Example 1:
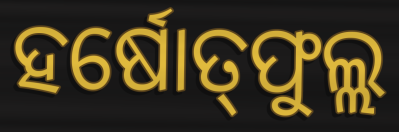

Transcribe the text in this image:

ହର୍ଷୋତ୍‌ଫୁଲ୍ଲ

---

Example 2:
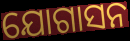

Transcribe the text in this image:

ଯୋଗାସନ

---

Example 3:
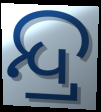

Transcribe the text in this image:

ନ୍ଦ୍ର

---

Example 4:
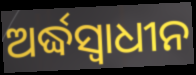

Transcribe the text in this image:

ଅର୍ଦ୍ଧସ୍ୱାଧୀନ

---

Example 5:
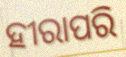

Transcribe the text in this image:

ହୀରାପରି